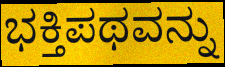
ಭಕ್ತಿಪಥವನ್ನು